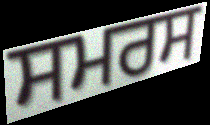
ਸਮਰਸ